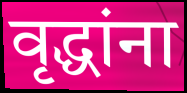
वृद्धांना